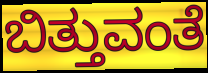
ಬಿತ್ತುವಂತೆ